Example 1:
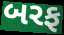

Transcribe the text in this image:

બરફ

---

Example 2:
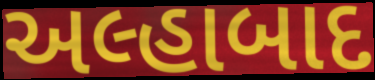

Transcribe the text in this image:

અલ્હાબાદ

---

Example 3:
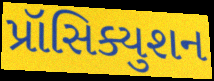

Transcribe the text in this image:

પ્રૉસિક્યુશન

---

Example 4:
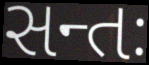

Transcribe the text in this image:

સન્તઃ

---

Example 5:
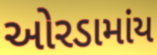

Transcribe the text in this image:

ઓરડામાંય